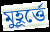
মুহূর্ত্তে